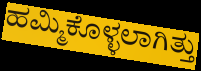
ಹಮ್ಮಿಕೊಳ್ಳಲಾಗಿತ್ತು